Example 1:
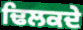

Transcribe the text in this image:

ਢਿਲਕਦੇ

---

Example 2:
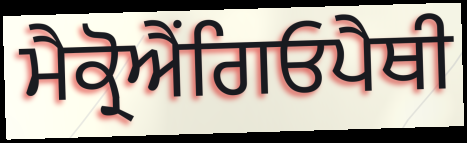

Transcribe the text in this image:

ਮੈਕ੍ਰੋਐਂਗਿਓਪੈਥੀ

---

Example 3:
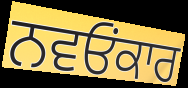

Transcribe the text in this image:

ਨਵਓਂਕਾਰ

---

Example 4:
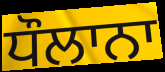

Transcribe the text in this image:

ਧੌਲਾਨਾ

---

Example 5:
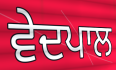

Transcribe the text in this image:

ਵੇਦਪਾਲ